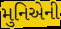
મુનિએની